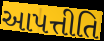
આપત્તીતિ